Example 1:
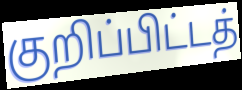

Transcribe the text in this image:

குறிப்பிட்டத்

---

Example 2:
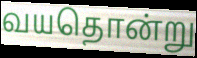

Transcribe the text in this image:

வயதொன்று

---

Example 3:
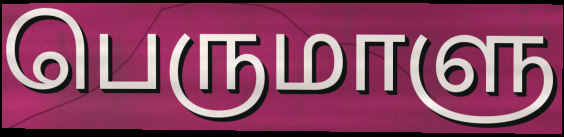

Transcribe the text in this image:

பெருமாளு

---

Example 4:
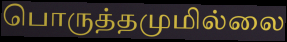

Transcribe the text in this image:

பொருத்தமுமில்லை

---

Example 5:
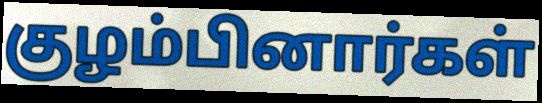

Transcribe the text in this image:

குழம்பினார்கள்